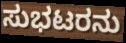
ಸುಭಟರನು